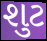
શુટ